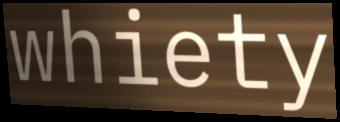
whiety